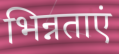
भिन्नताएं